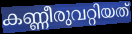
കണ്ണീരുവറ്റിയത്